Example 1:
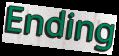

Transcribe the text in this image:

Ending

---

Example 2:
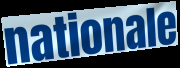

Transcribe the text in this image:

nationale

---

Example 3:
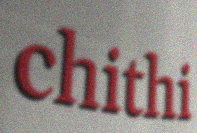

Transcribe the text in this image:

chithi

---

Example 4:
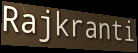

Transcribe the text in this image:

Rajkranti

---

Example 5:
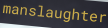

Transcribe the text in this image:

manslaughter